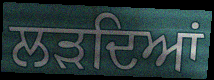
ਲੜਦਿਆਂ